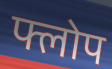
फ्लोप